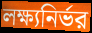
লক্ষ্যনির্ভর